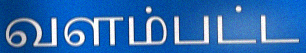
வளம்பட்ட